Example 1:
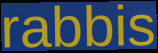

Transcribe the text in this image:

rabbis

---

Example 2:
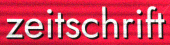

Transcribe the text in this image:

zeitschrift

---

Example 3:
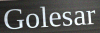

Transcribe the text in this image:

Golesar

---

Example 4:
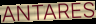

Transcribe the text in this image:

ANTARES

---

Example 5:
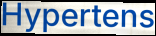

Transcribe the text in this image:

Hypertens